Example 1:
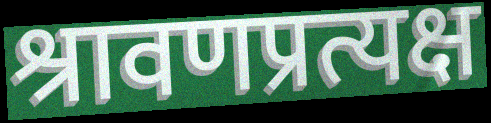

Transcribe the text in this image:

श्रावणप्रत्यक्ष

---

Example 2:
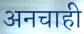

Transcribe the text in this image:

अनचाही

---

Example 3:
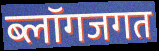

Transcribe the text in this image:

ब्लॉगजगत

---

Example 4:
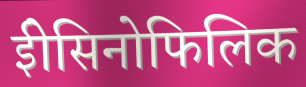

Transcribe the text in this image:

ईोसिनोफिलिक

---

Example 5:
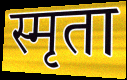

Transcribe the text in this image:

स्मृता